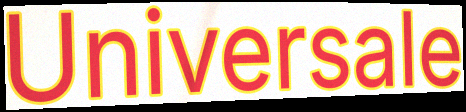
Universale